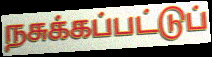
நசுக்கப்பட்டுப்